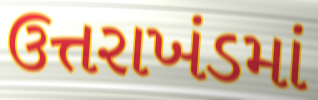
ઉત્તરાખંડમાં